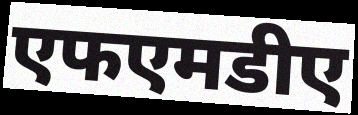
एफएमडीए